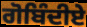
ਗੋਬਿੰਦੀਏ